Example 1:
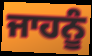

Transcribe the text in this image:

ਜਾਹਨੂੰ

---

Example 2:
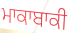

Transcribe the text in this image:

ਮਾਕਾਬਾਕੀ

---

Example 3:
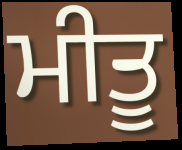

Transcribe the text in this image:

ਮੀਤੂ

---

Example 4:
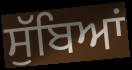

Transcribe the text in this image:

ਸੁੱਬਿਆਂ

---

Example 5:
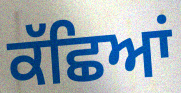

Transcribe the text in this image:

ਕੱਛਿਆਂ